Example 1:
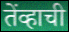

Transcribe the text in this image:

तेंव्हाची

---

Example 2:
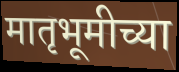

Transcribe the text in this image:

मातृभूमीच्या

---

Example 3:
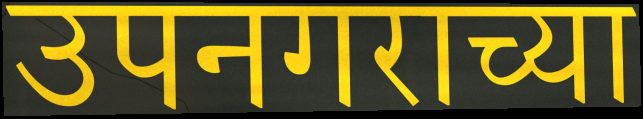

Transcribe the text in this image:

उपनगराच्या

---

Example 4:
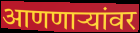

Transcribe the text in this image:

आणणाऱ्यांवर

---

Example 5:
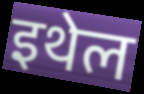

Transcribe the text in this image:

इथेल